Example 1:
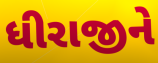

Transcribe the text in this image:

ધીરાજીને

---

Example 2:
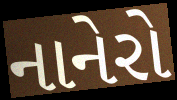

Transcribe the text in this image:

નાનેરો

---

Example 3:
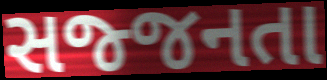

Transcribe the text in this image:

સજ્જનતા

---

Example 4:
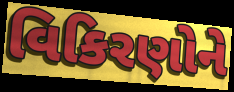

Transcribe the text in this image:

વિકિરણોને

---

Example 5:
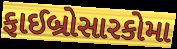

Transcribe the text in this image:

ફાઈબ્રોસારકોમા